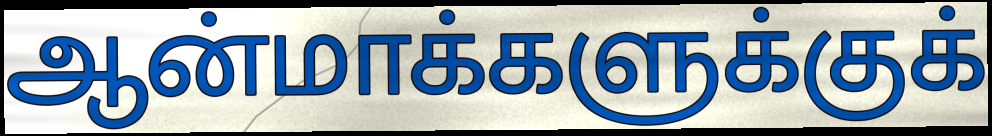
ஆன்மாக்களுக்குக்